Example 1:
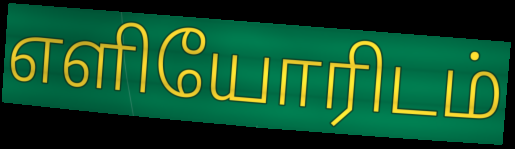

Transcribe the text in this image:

எளியோரிடம்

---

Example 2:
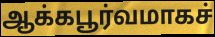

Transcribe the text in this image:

ஆக்கபூர்வமாகச்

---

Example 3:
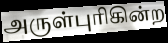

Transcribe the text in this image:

அருள்புரிகின்ற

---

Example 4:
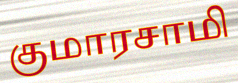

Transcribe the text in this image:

குமாரசாமி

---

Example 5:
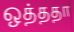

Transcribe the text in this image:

ஒத்ததா